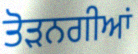
ਤੋੜਨਗੀਆਂ